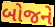
બોજને